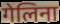
गेलिना